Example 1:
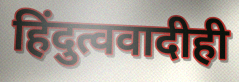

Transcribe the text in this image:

हिंदुत्ववादीही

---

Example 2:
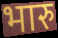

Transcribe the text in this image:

भारु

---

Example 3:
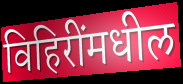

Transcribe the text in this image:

विहिरींमधील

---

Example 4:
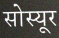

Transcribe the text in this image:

सोस्यूर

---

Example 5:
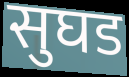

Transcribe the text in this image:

सुघड